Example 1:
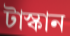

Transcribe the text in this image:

টাস্কান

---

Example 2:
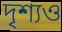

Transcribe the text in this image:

দৃশ্যও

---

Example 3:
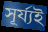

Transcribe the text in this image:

সূৰ্য্যই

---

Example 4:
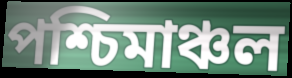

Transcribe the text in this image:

পশ্চিমাঞ্চল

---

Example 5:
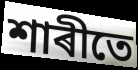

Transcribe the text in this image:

শাৰীতে